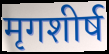
मृगशीर्ष